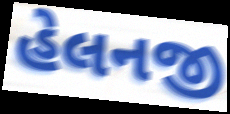
હેલનજી